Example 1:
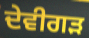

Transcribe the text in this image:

ਦੇਵੀਗੜ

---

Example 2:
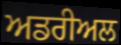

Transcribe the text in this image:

ਅਡਰੀਅਲ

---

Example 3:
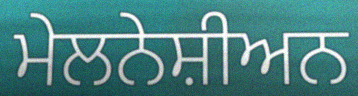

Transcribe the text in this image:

ਮੇਲਨੇਸ਼ੀਅਨ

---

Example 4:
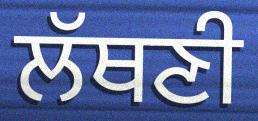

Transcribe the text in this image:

ਲੱਥਣੀ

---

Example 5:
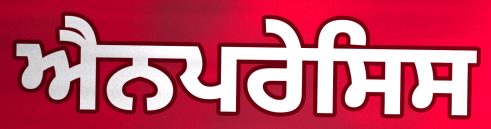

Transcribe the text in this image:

ਐਨਪਰੇਸਿਸ